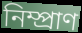
নিম্প্রাণ